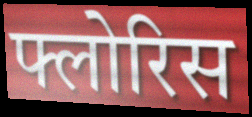
फ्लोरिस